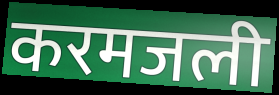
करमजली